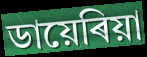
ডায়েৰিয়া